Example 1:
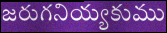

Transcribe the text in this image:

జరుగనియ్యకుము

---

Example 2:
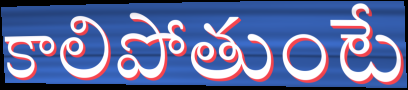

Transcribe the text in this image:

కాలిపోతుంటే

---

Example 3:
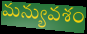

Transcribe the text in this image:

మన్యువశం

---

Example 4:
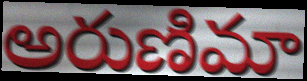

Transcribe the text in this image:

అరుణిమా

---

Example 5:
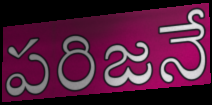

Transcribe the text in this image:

పరిజనే